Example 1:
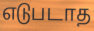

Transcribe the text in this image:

எடுபடாத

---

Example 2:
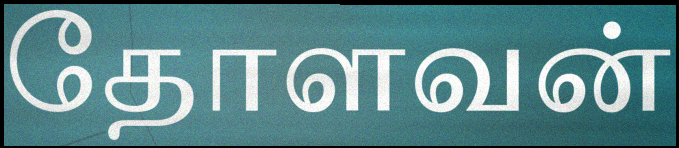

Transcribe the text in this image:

தோளவன்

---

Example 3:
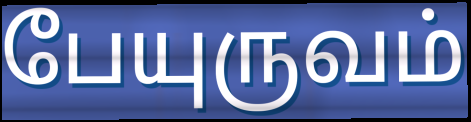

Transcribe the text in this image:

பேயுருவம்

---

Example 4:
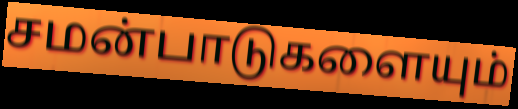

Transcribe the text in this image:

சமன்பாடுகளையும்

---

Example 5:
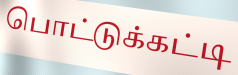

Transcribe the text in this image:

பொட்டுக்கட்டி